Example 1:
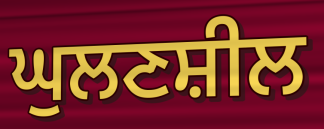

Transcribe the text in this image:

ਘੁਲਣਸ਼ੀਲ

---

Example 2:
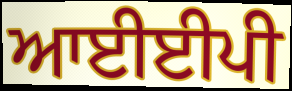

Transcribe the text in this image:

ਆਈਈਪੀ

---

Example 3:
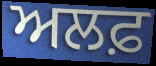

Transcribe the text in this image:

ਅਲਫ਼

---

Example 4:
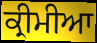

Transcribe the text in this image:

ਕ੍ਰੀਮੀਆ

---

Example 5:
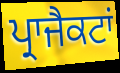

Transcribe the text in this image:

ਪ੍ਰਾਜੈਕਟਾਂ